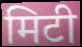
मिटी